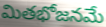
మితభోజనమే